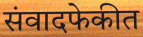
संवादफेकीत